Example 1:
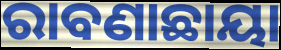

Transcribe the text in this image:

ରାବଣାଛାୟା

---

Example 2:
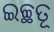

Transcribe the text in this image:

ଇଚ୍ଛତୂ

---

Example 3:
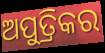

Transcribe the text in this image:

ଅପୁତ୍ରିକର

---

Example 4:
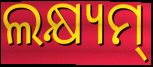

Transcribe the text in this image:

ଲକ୍ଷ୍ୟମ୍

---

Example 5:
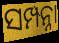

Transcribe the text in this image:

ସମ୍ପନ୍ନା